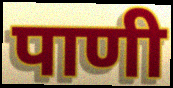
पाणी